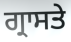
ਗ੍ਰਾਸਤੇ